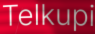
Telkupi